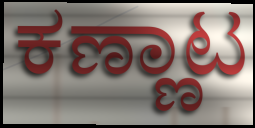
ಕಣ್ಣಾಟ